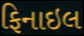
ફિનાઇલ